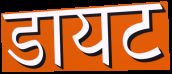
डायट